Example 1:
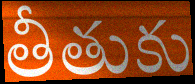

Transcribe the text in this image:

తీతుకు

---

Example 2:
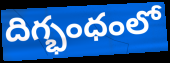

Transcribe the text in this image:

దిగ్భంధంలో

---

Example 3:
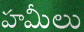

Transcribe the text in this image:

హమీలు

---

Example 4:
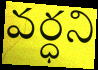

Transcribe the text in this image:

వర్ధని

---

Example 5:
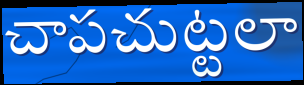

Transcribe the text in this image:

చాపచుట్టలా